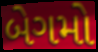
બેગમો